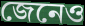
জেনেও